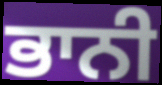
ਭਾਨੀ